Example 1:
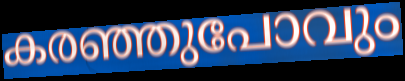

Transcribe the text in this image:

കരഞ്ഞുപോവും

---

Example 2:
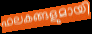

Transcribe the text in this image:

ഫലകങ്ങളുമായി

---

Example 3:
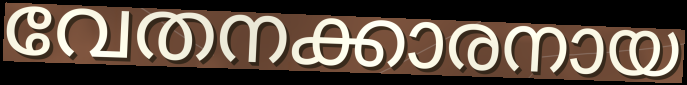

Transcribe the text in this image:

വേതനക്കാരനായ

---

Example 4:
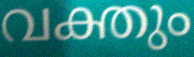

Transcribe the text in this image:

വക്തും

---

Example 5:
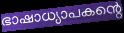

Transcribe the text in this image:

ഭാഷാധ്യാപകന്റെ